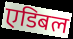
एडिबल